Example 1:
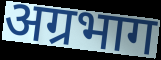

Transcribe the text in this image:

अग्रभाग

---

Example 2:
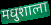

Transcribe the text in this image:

मधुशाला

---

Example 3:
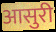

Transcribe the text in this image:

आसुरी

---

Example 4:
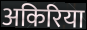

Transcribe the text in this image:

अकिरिया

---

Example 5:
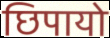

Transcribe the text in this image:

छिपायो